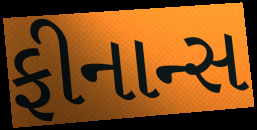
ફીનાન્સ